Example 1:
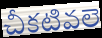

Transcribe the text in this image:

చీకటివలె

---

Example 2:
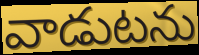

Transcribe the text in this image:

వాడుటను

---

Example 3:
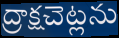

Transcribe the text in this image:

ద్రాక్షచెట్లను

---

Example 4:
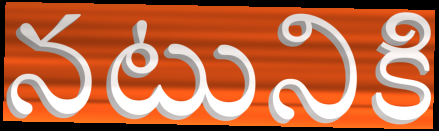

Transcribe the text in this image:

నటునికి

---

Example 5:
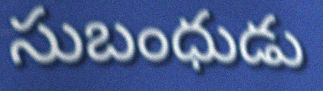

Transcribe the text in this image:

సుబంధుడు